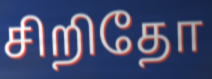
சிறிதோ